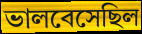
ভালবেসেছিল